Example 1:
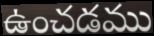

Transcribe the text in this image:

ఉంచడము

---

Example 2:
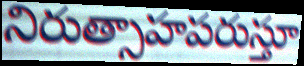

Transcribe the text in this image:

నిరుత్సాహపరుస్తూ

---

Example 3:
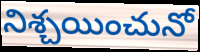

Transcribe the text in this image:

నిశ్చయించునో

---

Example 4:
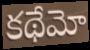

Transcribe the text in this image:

కథేమో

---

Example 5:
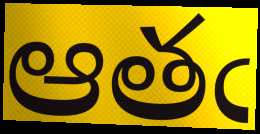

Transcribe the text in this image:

ఆతఁ